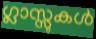
ഗ്ലാസ്സുകൾ